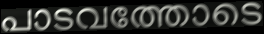
പാടവത്തോടെ